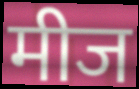
मीज